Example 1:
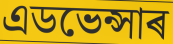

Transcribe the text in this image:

এডভেন্সাৰ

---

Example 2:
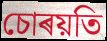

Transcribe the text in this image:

চোৰয়তি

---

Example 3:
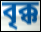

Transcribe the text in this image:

বৃক্ক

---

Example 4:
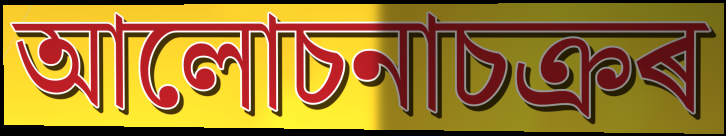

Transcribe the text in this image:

আলোচনাচক্ৰৰ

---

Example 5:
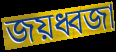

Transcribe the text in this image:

জয়ধ্বজা